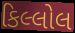
કિલ્લોલ